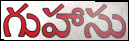
గుహాసు